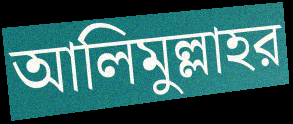
আলিমুল্লাহর